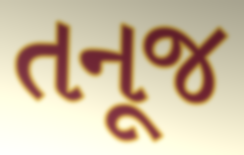
તનૂજ